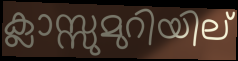
ക്ലാസ്സുമുറിയില്